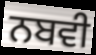
ਨਬਵੀ